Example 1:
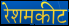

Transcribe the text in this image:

रेशमकीट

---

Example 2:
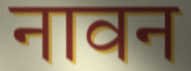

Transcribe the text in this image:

नावन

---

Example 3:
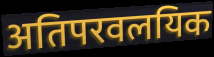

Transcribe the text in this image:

अतिपरवलयिक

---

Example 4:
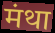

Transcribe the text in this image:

मंथा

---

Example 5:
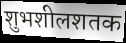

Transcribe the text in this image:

शुभशीलशतक